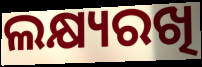
ଲକ୍ଷ୍ୟରଖି